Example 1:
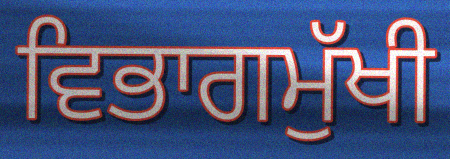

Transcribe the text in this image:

ਵਿਭਾਗਮੁੱਖੀ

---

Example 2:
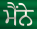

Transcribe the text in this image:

ਮੈਂਨੇ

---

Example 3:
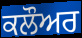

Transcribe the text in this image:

ਕਲੌਅਰ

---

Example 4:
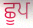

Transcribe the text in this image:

ਛੂਪ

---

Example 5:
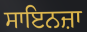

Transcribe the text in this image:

ਸਾਇਨਜ਼ਾ